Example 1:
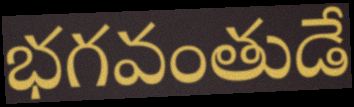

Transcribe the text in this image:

భగవంతుడే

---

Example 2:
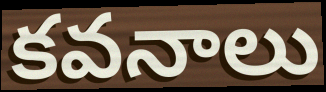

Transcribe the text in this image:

కవనాలు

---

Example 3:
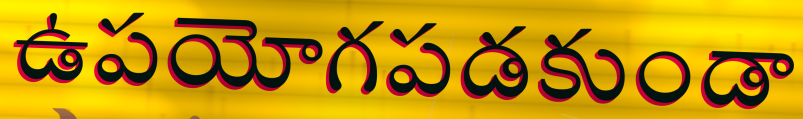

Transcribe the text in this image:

ఉపయోగపడకుండా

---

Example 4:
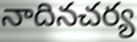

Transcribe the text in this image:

నాదినచర్య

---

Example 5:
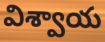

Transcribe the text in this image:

విశ్వాయ